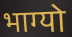
भाग्यो